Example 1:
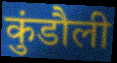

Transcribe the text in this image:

कुंडौली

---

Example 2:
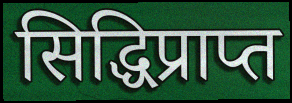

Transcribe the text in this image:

सिद्धिप्राप्त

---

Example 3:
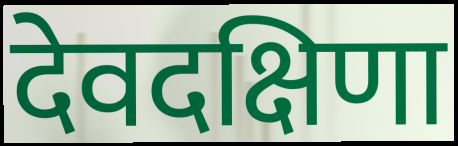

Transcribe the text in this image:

देवदक्षिणा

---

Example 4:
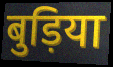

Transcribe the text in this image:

बुड़िया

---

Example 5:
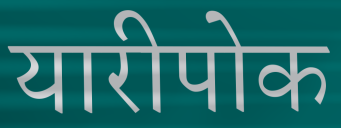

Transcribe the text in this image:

यारीपोक